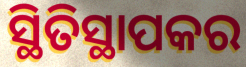
ସ୍ଥିତିସ୍ଥାପକର